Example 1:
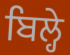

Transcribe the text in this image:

ਬਿਲ੍ਹੇ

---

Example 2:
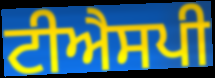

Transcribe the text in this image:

ਟੀਐਸਪੀ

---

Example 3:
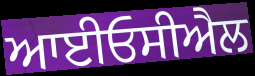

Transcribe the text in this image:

ਆਈਓਸੀਐਲ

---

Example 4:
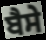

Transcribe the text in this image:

ਬੈਸੇ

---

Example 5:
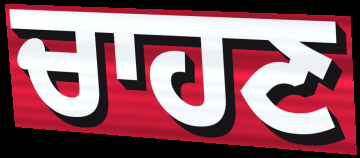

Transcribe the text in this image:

ਚਾਹਣ